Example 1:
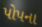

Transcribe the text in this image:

પોપના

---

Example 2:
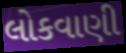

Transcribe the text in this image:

લોકવાણી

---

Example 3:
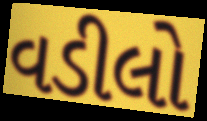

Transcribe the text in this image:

વડીલો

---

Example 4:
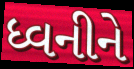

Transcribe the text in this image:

ધ્વનીને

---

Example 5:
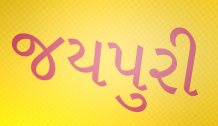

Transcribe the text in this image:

જયપુરી